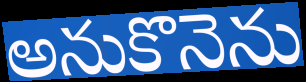
అనుకొనెను